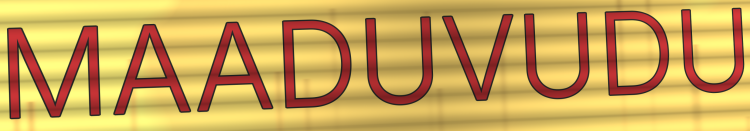
MAADUVUDU